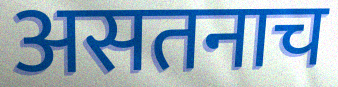
असतनाच